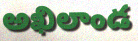
అఖిలాండ